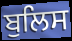
ਬੁਲਿਸ